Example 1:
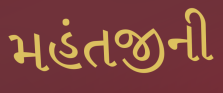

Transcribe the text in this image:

મહંતજીની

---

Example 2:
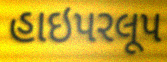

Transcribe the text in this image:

હાઇપરલૂપ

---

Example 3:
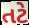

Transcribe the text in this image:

તટે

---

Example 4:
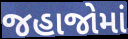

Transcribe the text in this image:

જહાજોમાં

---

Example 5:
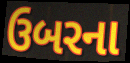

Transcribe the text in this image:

ઉબરના